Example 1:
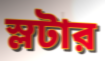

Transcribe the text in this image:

স্লটার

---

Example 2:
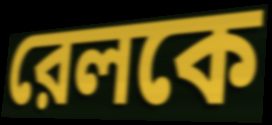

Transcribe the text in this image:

রেলকে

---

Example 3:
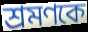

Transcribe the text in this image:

শ্রমণকে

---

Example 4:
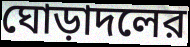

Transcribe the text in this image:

ঘোড়াদলের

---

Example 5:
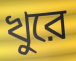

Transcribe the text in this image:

খুরে